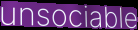
unsociable